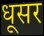
धूसर